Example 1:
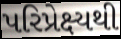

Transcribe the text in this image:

પરિપ્રેક્ષ્યથી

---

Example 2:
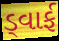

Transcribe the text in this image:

ડ્વાર્ફ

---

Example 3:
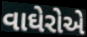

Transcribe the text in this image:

વાઘેરોએ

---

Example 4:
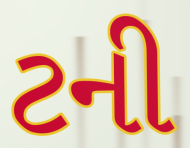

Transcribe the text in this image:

ટની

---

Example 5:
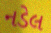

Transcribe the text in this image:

નડેલ